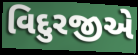
વિદુરજીએ